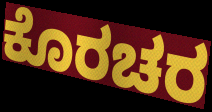
ಕೊರಚರ